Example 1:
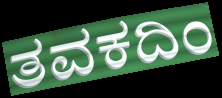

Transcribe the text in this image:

ತವಕದಿಂ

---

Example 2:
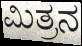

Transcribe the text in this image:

ಮಿತ್ರನ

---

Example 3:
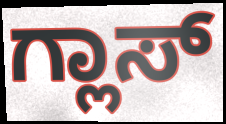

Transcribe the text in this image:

ಗ್ಲಾಸ್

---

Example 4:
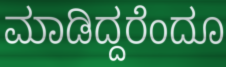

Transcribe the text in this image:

ಮಾಡಿದ್ದರೆಂದೂ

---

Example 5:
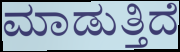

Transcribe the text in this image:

ಮಾಡುತ್ತಿದೆ